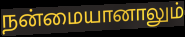
நன்மையானாலும்